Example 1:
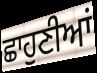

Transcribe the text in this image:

ਛਾਹੁਣੀਆਂ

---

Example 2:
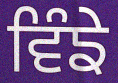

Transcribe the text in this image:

ਵਿੰਙੇ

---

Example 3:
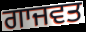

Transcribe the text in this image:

ਗਾਜਵਤ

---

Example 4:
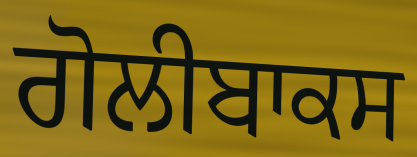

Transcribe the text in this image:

ਗੋਲੀਬਾਕਸ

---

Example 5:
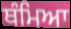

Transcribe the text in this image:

ਥੰਮਿਆ